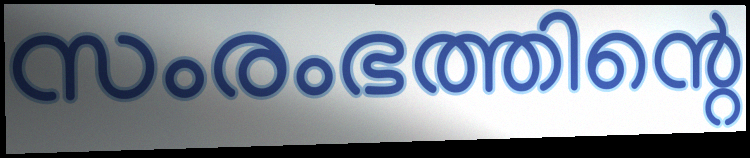
സംരംഭത്തിന്റെ